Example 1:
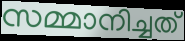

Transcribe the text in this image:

സമ്മാനിച്ചത്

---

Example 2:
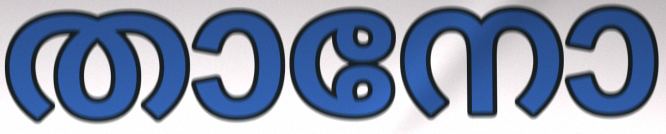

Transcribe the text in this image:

താനോ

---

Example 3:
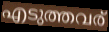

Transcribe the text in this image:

എടുത്തവര്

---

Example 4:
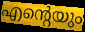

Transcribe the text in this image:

എന്റെയും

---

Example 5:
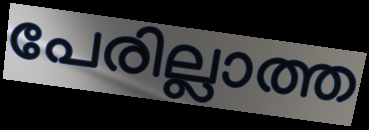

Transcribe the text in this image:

പേരില്ലാത്ത